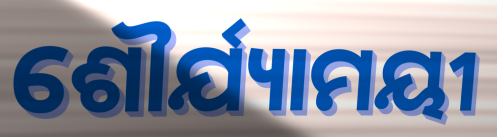
ଶୌର୍ଯ୍ୟାମୟୀ